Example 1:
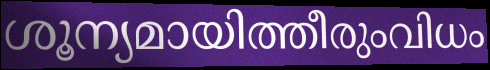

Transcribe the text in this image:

ശൂന്യമായിത്തീരുംവിധം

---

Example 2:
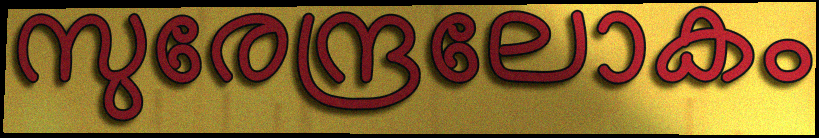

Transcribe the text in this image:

സുരേന്ദ്രലോകം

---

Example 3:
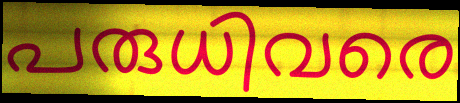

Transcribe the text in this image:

പരുധിവരെ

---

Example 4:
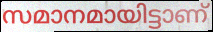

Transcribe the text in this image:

സമാനമായിട്ടാണ്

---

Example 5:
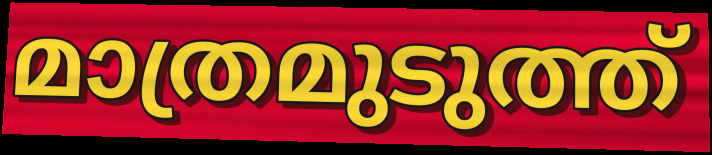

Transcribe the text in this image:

മാത്രമുടുത്ത്